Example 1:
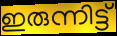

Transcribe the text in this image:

ഇരുന്നിട്ട്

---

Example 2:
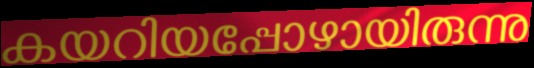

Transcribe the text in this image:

കയറിയപ്പോഴായിരുന്നു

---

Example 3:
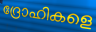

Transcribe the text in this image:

ദ്രോഹികളെ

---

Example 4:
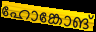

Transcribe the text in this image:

ഹോങ്കോങ്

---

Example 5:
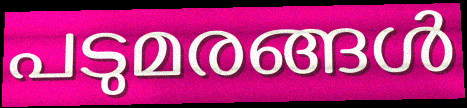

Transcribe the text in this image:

പടുമരങ്ങൾ